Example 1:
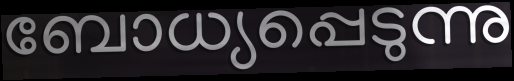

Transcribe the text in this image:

ബോധ്യപ്പെടുന്നു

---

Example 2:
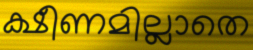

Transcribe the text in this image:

ക്ഷീണമില്ലാതെ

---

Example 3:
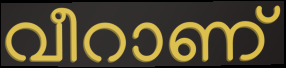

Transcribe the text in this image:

വീറാണ്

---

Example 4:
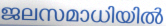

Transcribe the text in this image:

ജലസമാധിയിൽ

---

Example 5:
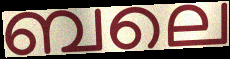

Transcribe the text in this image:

ബലെ